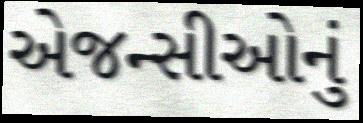
એજન્સીઓનું